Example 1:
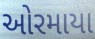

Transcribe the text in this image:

ઓરમાયા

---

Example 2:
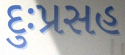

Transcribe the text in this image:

દુઃપ્રસહ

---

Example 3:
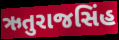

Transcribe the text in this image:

ઋતુરાજસિંહ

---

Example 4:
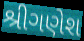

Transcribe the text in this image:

શ્રીગણેશ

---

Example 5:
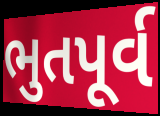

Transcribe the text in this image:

ભુતપૂર્વ